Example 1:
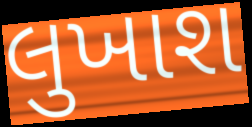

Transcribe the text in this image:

લુખાશ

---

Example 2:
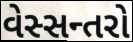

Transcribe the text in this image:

વેસ્સન્તરો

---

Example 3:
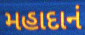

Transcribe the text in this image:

મહાદાનં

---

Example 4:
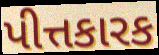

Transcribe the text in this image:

પીત્તકારક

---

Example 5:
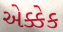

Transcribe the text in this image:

એક્કેક